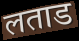
लताड